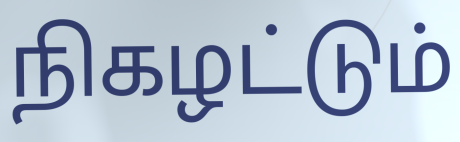
நிகழட்டும்